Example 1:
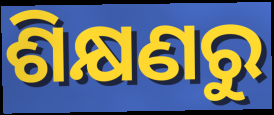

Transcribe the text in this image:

ଶିକ୍ଷଣରୁ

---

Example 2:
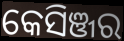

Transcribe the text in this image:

କେସିଞ୍ଜର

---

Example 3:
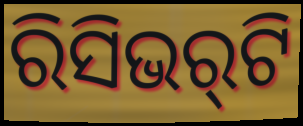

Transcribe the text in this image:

ରିସିଭର୍‌ଟି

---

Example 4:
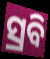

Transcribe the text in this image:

ସ୍ରବି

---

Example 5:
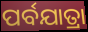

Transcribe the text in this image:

ପର୍ବଯାତ୍ରା